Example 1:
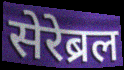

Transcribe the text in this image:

सेरेब्रल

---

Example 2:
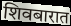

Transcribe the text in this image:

शिवबारात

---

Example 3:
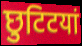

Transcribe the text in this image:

छुटिटयां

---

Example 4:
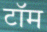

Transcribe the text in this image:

टॉम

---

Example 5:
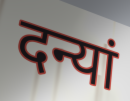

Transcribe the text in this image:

दन्यां